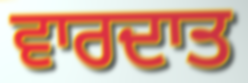
ਵਾਰਦਾਤ